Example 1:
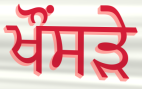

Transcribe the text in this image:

ਖੌਂਸੜੇ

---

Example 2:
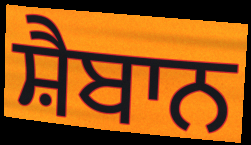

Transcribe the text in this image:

ਸ਼ੈਬਾਨ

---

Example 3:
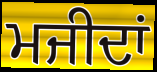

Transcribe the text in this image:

ਮਜੀਦਾਂ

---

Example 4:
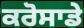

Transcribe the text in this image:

ਕਰੋਸਾਡੇ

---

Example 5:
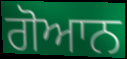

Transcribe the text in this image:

ਗੋਆਨ